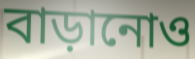
বাড়ানোও